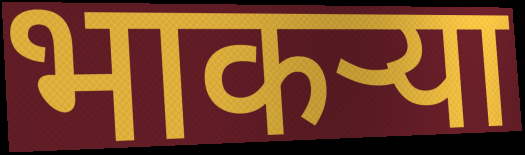
भाकर्‍या